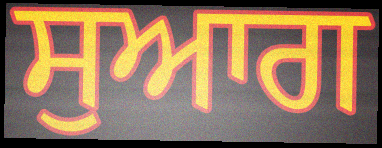
ਸੁਆਗ